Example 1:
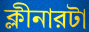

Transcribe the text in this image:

ক্লীনারটা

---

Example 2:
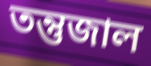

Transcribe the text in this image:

তন্তুজাল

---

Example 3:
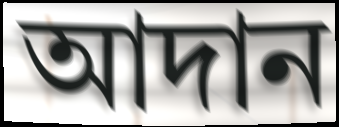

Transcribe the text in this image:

আদান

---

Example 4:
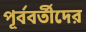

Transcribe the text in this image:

পূর্ববর্তীদের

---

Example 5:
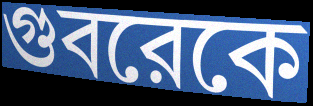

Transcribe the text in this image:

গুবরেকে